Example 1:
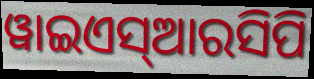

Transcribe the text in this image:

ୱାଇଏସ୍ଆରସିପି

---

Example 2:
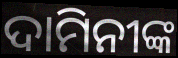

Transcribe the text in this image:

ଦାମିନୀଙ୍କ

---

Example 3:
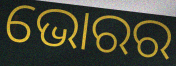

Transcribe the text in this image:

ଭୋରର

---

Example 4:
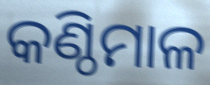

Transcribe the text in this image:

କଣ୍ଠିମାଳ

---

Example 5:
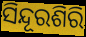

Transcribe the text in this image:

ସିନ୍ଦୂରଶିରି